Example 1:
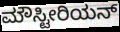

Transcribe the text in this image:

ಮೌಸ್ಟೀರಿಯನ್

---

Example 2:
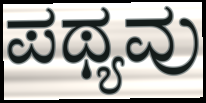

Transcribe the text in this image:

ಪಥ್ಯವು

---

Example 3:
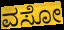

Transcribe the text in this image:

ವಸೋ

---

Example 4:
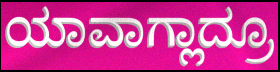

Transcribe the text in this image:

ಯಾವಾಗ್ಲಾದ್ರೂ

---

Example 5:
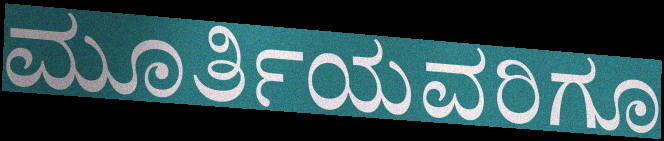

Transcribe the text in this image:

ಮೂರ್ತಿಯವರಿಗೂ